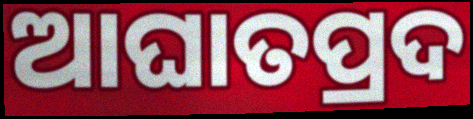
ଆଘାତପ୍ରଦ